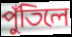
পুঁতিলে